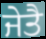
ਜੇਤੈ